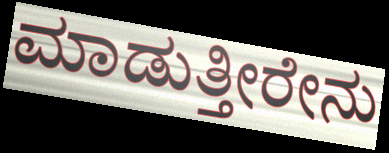
ಮಾಡುತ್ತೀರೇನು